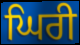
ਘਿਰੀ